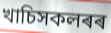
খাচিসকলৰৰ